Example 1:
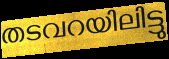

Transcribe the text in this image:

തടവറയിലിട്ടു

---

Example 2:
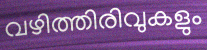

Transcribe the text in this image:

വഴിത്തിരിവുകളും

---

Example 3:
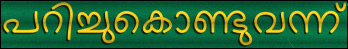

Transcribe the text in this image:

പറിച്ചുകൊണ്ടുവന്ന്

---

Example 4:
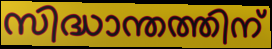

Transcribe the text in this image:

സിദ്ധാന്തത്തിന്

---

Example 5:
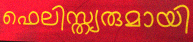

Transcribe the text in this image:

ഫെലിസ്ത്യരുമായി